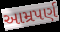
આમ્રપર્ણ